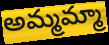
అమ్మమ్మా